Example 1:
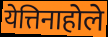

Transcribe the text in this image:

येत्तिनाहोले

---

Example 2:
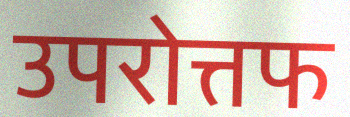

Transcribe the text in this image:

उपरोत्तफ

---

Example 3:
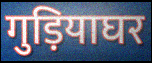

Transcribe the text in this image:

गुड़ियाघर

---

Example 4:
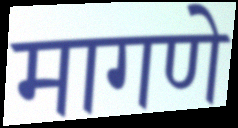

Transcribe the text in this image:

मागणे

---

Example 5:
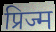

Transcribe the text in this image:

प्रिज्म